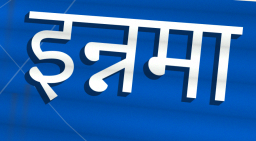
इन्नमा